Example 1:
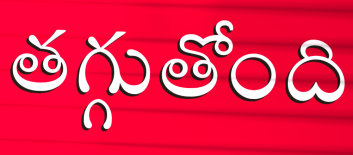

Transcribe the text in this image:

తగ్గుతోంది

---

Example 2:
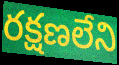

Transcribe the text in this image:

రక్షణలేని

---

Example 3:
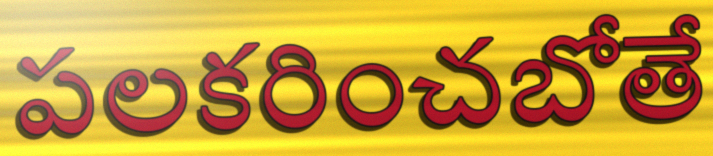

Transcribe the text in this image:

పలకరించబోతే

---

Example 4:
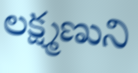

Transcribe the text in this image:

లక్ష్మణుని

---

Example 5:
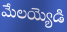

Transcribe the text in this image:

మేలయ్యెడి